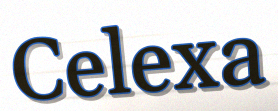
Celexa